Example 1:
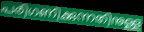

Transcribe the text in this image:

പരിഗണിക്കുന്നതിനുള്ള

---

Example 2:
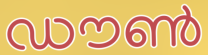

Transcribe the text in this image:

ഡൗൺ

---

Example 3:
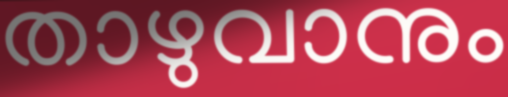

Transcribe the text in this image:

താഴുവാനും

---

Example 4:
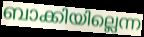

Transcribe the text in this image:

ബാക്കിയില്ലെന്ന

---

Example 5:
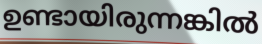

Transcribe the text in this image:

ഉണ്ടായിരുന്നങ്കിൽ